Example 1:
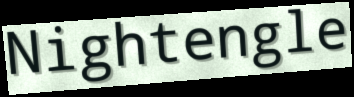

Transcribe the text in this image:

Nightengle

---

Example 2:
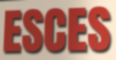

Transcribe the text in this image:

ESCES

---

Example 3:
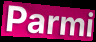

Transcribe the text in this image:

Parmi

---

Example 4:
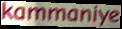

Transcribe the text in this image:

kammaniye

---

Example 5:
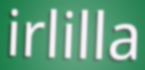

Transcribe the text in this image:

irlilla